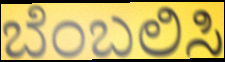
ಬೆಂಬಲಿಸಿ